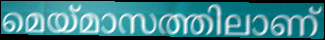
മെയ്മാസത്തിലാണ്